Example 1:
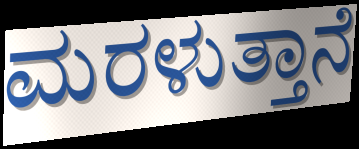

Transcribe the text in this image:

ಮರಳುತ್ತಾನೆ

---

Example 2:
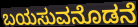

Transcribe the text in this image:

ಬಯಸುವನೊಡನೆ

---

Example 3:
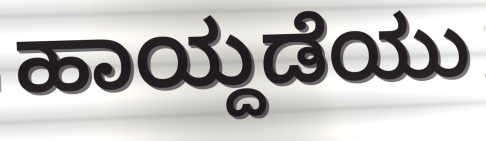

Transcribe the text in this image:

ಹಾಯ್ದಡೆಯು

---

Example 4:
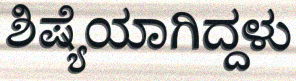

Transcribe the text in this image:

ಶಿಷ್ಯೆಯಾಗಿದ್ದಳು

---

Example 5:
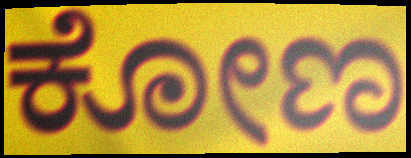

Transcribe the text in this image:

ಕೋಣ